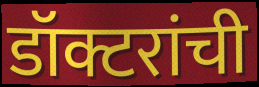
डॉक्टरांची